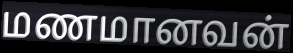
மணமானவன்